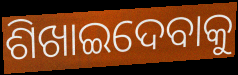
ଶିଖାଇଦେବାକୁ